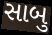
સાબુ